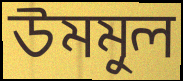
উমমুল